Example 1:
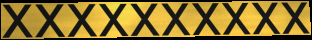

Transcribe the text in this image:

xxxxxxxxxx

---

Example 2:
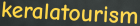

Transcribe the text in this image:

keralatourism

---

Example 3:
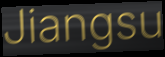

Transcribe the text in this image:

Jiangsu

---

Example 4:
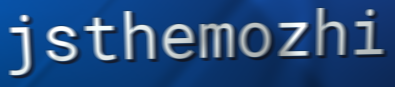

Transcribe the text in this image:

jsthemozhi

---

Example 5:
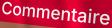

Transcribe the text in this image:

Commentaire